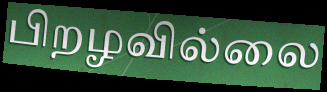
பிறழவில்லை